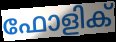
ഫോളിക്